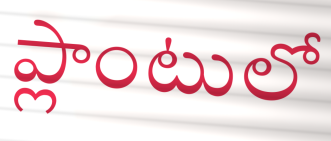
ప్లాంటులో